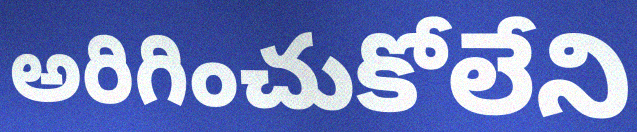
అరిగించుకోలేని